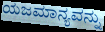
ಯಜಮಾನ್ಯವನ್ನು